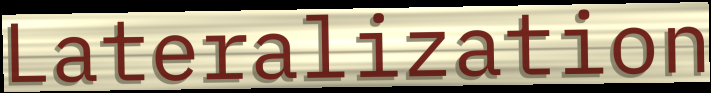
Lateralization